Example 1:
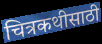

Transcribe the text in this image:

चित्रकथीसाठी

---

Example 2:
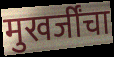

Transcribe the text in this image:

मुखर्जींचा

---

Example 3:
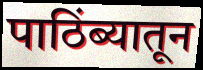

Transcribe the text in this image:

पाठिंब्यातून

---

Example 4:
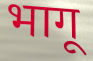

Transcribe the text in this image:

भागू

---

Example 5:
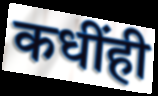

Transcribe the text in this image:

कधींही